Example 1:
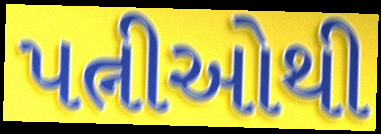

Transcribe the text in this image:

પત્નીઓથી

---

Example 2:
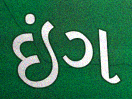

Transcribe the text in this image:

ઇંગ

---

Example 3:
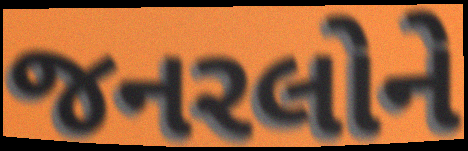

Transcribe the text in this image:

જનરલોને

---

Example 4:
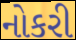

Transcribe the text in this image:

નોકરી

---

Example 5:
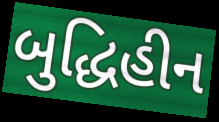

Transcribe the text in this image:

બુદ્ધિહીન